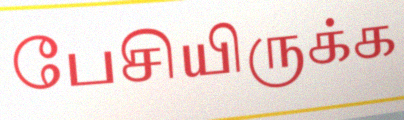
பேசியிருக்க